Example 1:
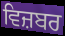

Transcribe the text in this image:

ਵਿਜ਼ਬਰ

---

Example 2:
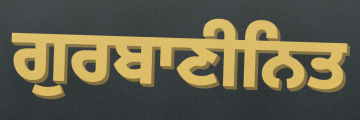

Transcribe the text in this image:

ਗੁਰਬਾਣੀਨਿਤ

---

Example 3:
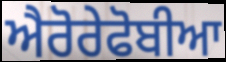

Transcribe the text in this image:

ਐਰੋਰੇਫੋਬੀਆ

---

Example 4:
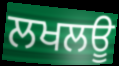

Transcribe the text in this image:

ਲਖਲਊ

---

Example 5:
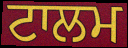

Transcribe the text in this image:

ਟਾਲਮ